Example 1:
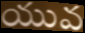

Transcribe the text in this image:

యువ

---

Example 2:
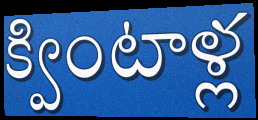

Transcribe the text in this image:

క్వింటాళ్ల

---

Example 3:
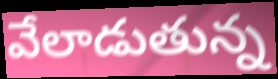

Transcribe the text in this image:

వేలాడుతున్న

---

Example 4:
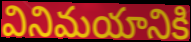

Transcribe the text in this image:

వినిమయానికి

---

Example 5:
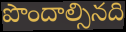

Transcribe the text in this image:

పొందాల్సినది